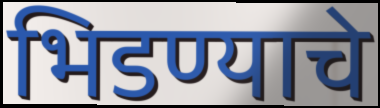
भिडण्याचे